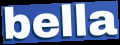
bella